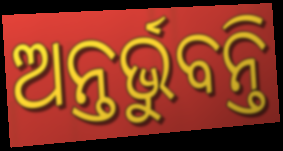
ଅନ୍ତର୍ଭୁବନ୍ତି